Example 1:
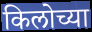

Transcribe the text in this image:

किलोच्या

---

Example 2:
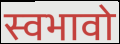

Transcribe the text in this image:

स्वभावो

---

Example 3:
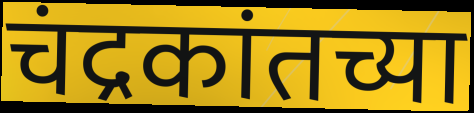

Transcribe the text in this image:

चंद्रकांतच्या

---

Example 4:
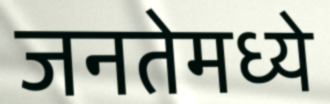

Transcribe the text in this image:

जनतेमध्ये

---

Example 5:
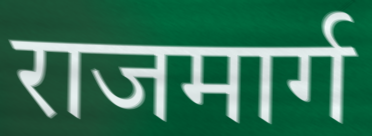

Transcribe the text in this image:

राजमार्ग